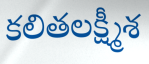
కలితలక్ష్మీశ